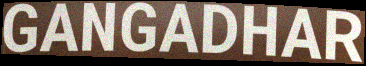
GANGADHAR